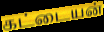
கட்டையன்